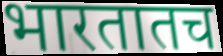
भारतातच